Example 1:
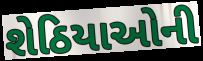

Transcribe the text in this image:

શેઠિયાઓની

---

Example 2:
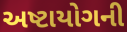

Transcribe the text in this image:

અષ્ટાયોગની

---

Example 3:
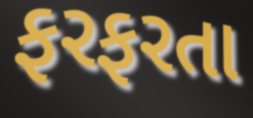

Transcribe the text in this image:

ફરફરતા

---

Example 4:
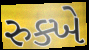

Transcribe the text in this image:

રુક્ખે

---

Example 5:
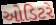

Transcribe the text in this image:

ઓડિટરે